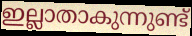
ഇല്ലാതാകുന്നുണ്ട്